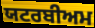
ਯਟਰਬੀਅਮ